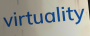
virtuality